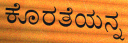
ಕೊರತೆಯನ್ನ